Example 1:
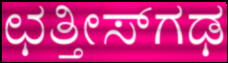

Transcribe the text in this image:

ಛತ್ತೀಸ್‍ಗಢ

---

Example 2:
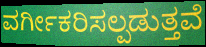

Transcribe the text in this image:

ವರ್ಗೀಕರಿಸಲ್ಪಡುತ್ತವೆ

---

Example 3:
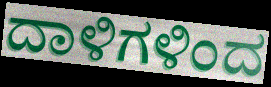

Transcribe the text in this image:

ದಾಳಿಗಳಿಂದ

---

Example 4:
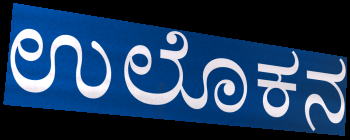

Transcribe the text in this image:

ಉಲೊಕನ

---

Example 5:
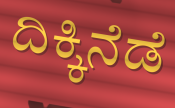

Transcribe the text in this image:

ದಿಕ್ಕಿನೆಡೆ